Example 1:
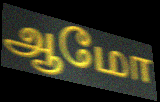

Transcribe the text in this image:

ஆமோ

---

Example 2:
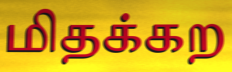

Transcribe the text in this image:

மிதக்கற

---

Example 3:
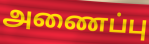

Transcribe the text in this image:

அணைப்பு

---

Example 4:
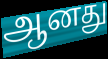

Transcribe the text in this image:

ஆனது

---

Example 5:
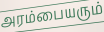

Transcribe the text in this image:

அரம்பையரும்